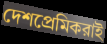
দেশপ্রেমিকরাই